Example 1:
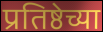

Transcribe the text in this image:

प्रतिष्ठेच्या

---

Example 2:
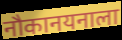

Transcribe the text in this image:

नौकानयनाला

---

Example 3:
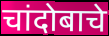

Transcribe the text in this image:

चांदोबाचे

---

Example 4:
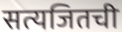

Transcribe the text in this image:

सत्यजितची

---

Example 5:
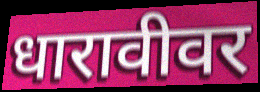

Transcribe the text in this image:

धारावीवर